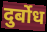
दुर्बोध